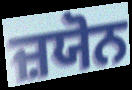
ਜ਼ਯੋਨ